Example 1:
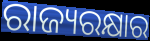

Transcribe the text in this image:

ରାଜ୍ୟରକ୍ଷାର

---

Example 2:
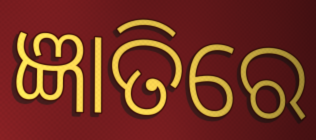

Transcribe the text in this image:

ଜ୍ଞାତିରେ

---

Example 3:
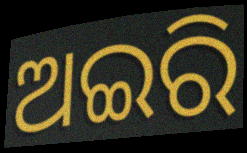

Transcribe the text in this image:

ଅଇରି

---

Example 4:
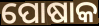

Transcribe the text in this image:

ପୋଷାକ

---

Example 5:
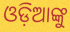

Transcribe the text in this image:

ଓଡ଼ିଆଙ୍କୁ